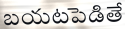
బయటపెడితే